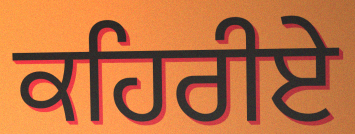
ਕਹਿਰੀਏ